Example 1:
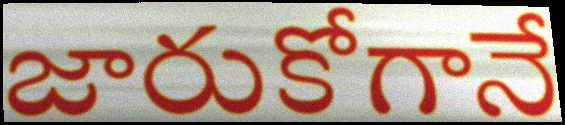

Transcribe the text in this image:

జారుకోగానే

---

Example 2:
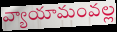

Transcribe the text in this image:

వ్యాయామంవల్ల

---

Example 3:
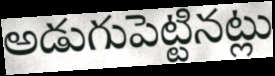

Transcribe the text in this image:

అడుగుపెట్టినట్లు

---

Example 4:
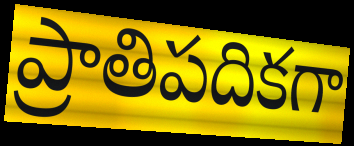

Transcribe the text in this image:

ప్రాతిపదికగా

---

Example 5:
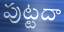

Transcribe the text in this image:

పుట్టదా